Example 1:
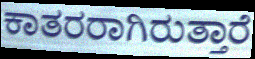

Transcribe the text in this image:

ಕಾತರರಾಗಿರುತ್ತಾರೆ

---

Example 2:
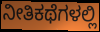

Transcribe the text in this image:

ನೀತಿಕಥೆಗಳಲ್ಲಿ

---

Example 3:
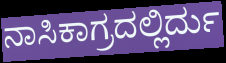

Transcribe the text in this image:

ನಾಸಿಕಾಗ್ರದಲ್ಲಿರ್ದು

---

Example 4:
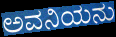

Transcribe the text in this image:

ಅವನಿಯನು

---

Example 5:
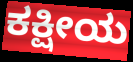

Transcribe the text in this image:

ಕಕ್ಷೀಯ